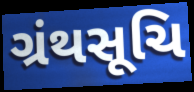
ગ્રંથસૂચિ